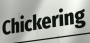
Chickering